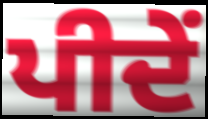
ਪੀਦੇਂ